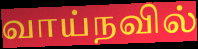
வாய்நவில்